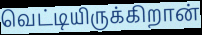
வெட்டியிருக்கிறான்